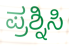
ಪ್ರಶ್ನಿಸಿ